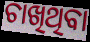
ଚାଖିଥିବା